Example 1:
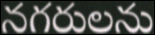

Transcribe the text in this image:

నగరులను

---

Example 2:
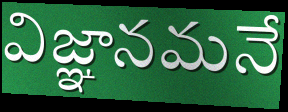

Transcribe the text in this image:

విజ్ఞానమనే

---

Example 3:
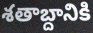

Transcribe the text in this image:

శతాబ్దానికి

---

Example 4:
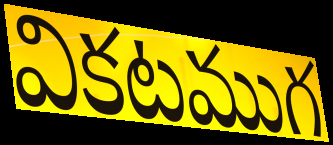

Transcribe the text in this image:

వికటముగ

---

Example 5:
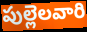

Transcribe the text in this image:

పుల్లెలవారి